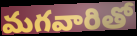
మగవారితో